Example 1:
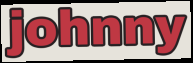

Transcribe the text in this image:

johnny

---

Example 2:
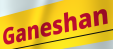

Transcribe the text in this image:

Ganeshan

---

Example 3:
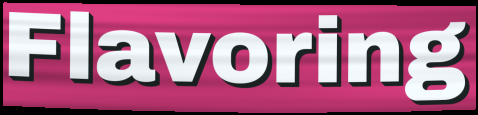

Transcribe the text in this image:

Flavoring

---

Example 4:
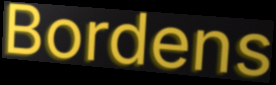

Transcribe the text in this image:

Bordens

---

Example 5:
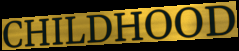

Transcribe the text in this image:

CHILDHOOD